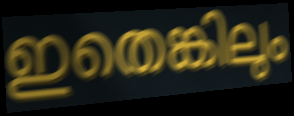
ഇതെങ്കിലും